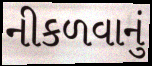
નીકળવાનું